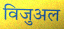
विजुअल